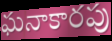
ఘనాకారపు